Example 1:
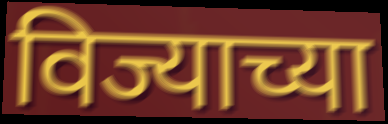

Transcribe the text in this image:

विज्याच्या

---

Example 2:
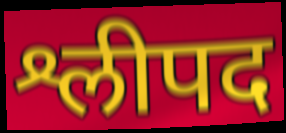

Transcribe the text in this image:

श्लीपद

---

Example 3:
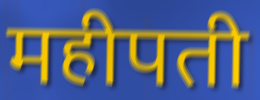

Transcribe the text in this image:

महीपती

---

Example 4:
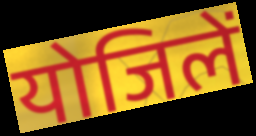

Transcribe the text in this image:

योजिलें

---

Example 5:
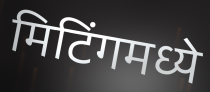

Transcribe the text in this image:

मिटिंगमध्ये